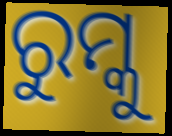
ରୁମ୍କୁ